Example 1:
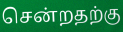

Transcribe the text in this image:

சென்றதற்கு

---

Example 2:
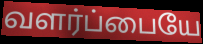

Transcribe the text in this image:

வளர்ப்பையே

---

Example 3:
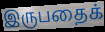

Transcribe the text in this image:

இருபதைக்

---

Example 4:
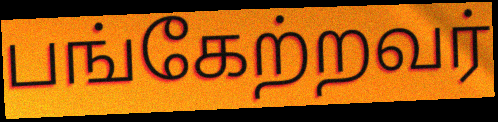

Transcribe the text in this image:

பங்கேற்றவர்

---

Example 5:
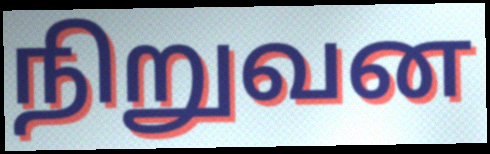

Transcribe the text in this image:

நிறுவன